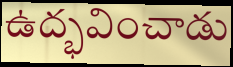
ఉద్భవించాడు